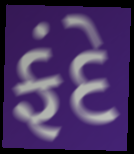
ફંદે